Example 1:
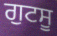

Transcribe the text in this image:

ਗੁਟਸੂ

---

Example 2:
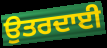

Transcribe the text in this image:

ਉਤਰਦਾਈ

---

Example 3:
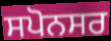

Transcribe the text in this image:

ਸਪੋਨਸਰ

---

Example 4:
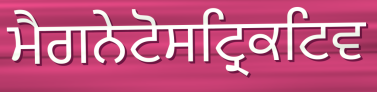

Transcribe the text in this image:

ਮੈਗਨੇਟੋਸਟ੍ਰਿਕਟਿਵ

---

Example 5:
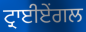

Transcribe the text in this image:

ਟ੍ਰਾਈਏਂਗਲ